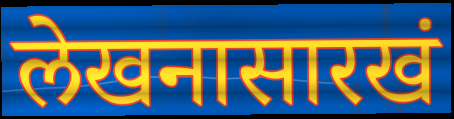
लेखनासारखं